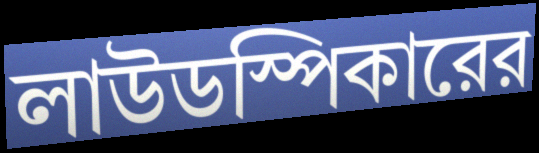
লাউডস্পিকারের